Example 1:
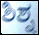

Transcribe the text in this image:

ಶಿಶ್ನ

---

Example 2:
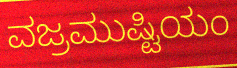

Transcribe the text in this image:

ವಜ್ರಮುಷ್ಟಿಯಂ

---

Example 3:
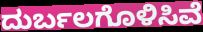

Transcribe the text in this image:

ದುರ್ಬಲಗೊಳಿಸಿವೆ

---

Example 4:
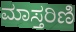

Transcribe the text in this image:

ಮಾಸ್ತರಿಣಿ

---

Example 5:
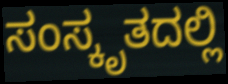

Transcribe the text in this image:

ಸಂಸ್ಕೃತದಲ್ಲಿ